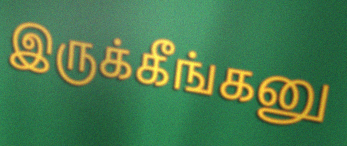
இருக்கீங்கனு